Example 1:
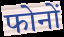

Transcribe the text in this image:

फोनों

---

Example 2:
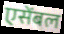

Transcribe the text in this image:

एसेंबल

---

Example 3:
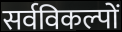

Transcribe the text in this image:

सर्वविकल्पों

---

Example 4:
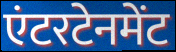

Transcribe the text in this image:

एंटरटेनमेंट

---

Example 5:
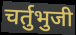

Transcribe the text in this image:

चर्तुभुजी